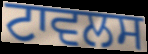
ਟਾਵਲਸ